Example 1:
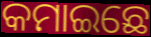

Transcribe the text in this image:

କମାଇଛେ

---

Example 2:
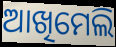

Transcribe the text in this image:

ଆଖିମେଲି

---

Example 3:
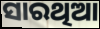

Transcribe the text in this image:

ସାରଥିଆ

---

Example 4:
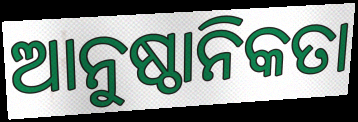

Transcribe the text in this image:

ଆନୁଷ୍ଠାନିକତା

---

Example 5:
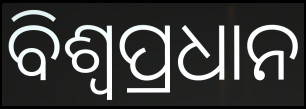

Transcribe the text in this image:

ବିଶ୍ୱପ୍ରଧାନ